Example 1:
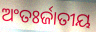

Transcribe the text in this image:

ଅଂତଃର୍ଜାତୀୟ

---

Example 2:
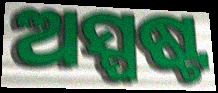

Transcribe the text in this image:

ଅସ୍ପଷ୍ଟ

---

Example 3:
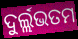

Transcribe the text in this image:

ଦୁର୍ଲ୍ଲଭତମ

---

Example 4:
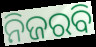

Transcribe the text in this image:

ନିଜରବି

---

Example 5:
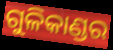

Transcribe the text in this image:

ଗୁଳିକାଣ୍ଡର